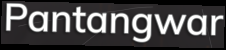
Pantangwar